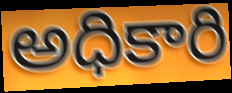
అధికారి